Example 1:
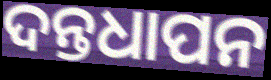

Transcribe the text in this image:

ଦନ୍ତଧାପନ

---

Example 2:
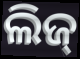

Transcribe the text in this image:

ଲିଜ୍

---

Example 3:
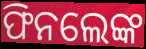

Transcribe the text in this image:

ଫିନଲେଙ୍କ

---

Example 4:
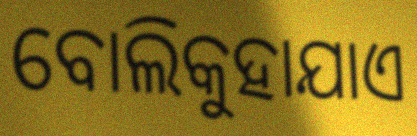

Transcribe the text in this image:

ବୋଲିକୁହାଯାଏ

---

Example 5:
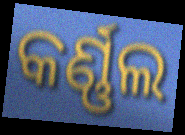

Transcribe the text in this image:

କର୍ଣ୍ଣଲ